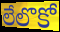
లేలొకో